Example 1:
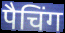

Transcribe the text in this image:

पैचिंग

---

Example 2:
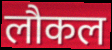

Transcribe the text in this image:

लौकल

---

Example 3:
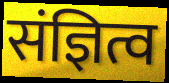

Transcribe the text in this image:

संज्ञित्व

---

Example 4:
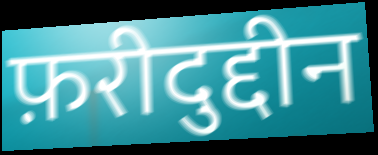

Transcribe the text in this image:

फ़रीदुद्दीन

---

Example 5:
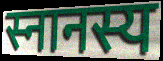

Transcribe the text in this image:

स्नानस्य